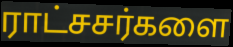
ராட்சசர்களை